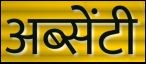
अब्सेंटी